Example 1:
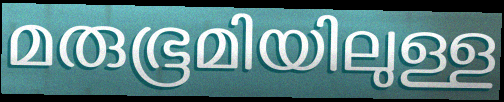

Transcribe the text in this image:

മരുഭൂമിയിലുള്ള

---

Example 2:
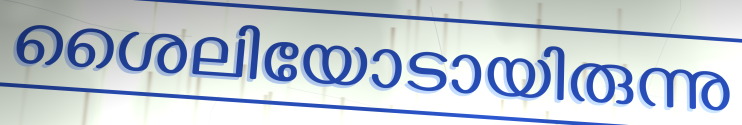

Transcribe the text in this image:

ശൈലിയോടായിരുന്നു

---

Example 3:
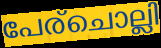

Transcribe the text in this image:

പേര്ചൊല്ലി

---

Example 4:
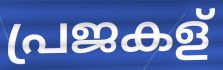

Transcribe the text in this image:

പ്രജകള്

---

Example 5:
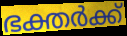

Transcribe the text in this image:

ഭക്തർക്ക്